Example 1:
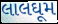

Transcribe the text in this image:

લાલઘૂમ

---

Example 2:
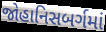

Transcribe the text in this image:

જોહાનિસબર્ગમાં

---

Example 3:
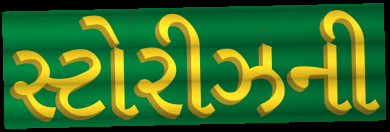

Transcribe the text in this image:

સ્ટોરીઝની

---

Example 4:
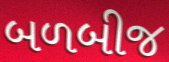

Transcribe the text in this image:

બળબીજ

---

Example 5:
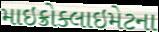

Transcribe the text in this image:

માઇક્રોક્લાઇમેટના